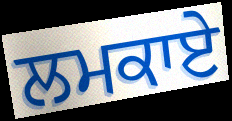
ਲਮਕਾਏ